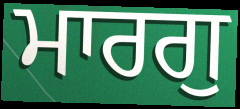
ਮਾਰਗੁ